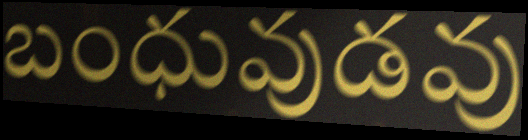
బంధువుడవు